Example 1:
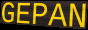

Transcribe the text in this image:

GEPAN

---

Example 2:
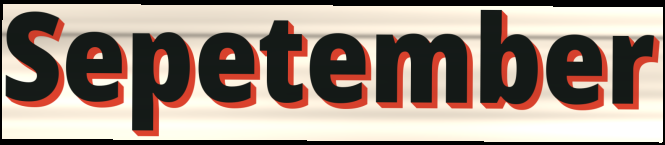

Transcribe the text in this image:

Sepetember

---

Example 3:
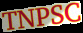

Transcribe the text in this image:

TNPSC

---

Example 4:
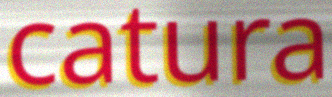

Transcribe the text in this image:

catura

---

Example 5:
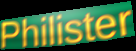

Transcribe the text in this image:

Philister